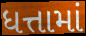
ધત્તામાં